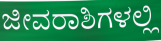
ಜೀವರಾಶಿಗಳಲ್ಲಿ